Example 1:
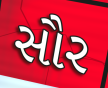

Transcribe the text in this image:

સૌર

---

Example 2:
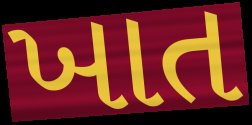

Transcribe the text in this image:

ખાત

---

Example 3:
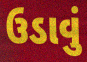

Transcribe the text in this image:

ઉડાવું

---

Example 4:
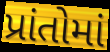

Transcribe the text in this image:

પ્રાંતોમાં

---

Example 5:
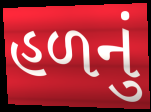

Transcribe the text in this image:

હળનું